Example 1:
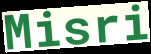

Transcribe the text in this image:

Misri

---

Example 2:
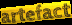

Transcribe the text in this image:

artefact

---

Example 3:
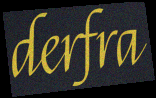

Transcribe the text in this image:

derfra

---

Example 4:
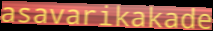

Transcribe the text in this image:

asavarikakade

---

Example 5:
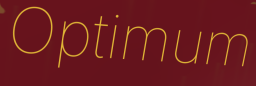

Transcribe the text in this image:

Optimum